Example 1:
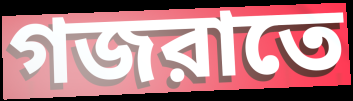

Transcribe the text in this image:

গজরাতে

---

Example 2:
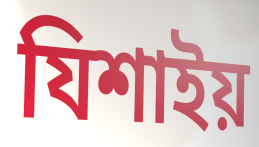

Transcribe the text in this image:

যিশাইয়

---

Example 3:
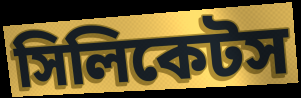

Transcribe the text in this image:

সিলিকেটস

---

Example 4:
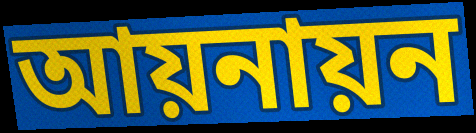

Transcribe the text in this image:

আয়নায়ন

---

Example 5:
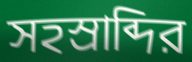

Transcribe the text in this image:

সহস্রাব্দির